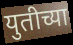
युतीच्या